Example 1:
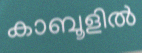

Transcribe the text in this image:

കാബൂളിൽ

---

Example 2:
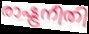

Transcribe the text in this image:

രാഷ്ട്രനീതി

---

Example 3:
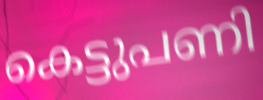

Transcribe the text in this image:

കെട്ടുപണി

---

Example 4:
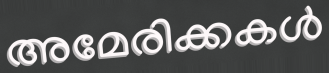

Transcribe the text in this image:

അമേരിക്കകൾ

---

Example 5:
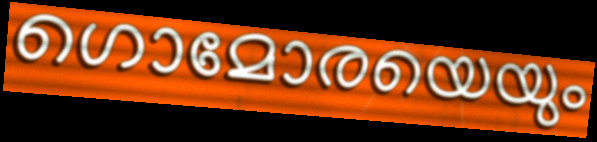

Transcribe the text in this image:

ഗൊമോരയെയും